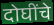
दोघींचे